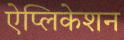
ऐप्लिकेशन